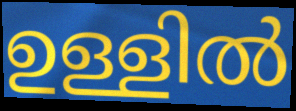
ഉള്ളിൽ